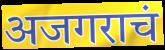
अजगराचं